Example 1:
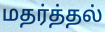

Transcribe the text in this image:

மதர்த்தல்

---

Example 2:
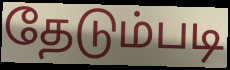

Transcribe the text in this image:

தேடும்படி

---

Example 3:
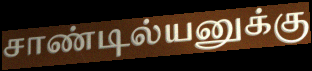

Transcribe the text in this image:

சாண்டில்யனுக்கு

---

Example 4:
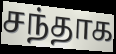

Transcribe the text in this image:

சந்தாக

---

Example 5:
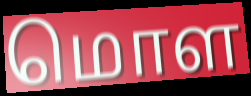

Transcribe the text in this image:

மொள